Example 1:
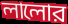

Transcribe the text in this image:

লালোর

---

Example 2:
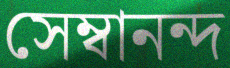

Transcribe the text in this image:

সেম্বানন্দ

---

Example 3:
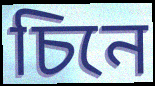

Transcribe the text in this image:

চিনে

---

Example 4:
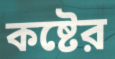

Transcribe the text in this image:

কষ্টের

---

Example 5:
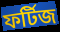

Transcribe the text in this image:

ফর্টিজ